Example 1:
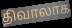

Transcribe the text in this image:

திவாலாக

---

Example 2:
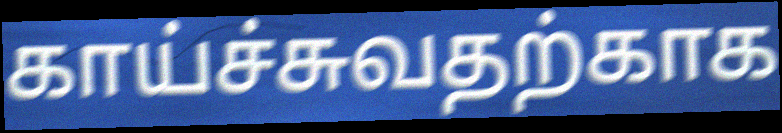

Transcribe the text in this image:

காய்ச்சுவதற்காக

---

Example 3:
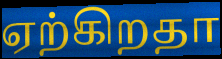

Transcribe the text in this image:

ஏற்கிறதா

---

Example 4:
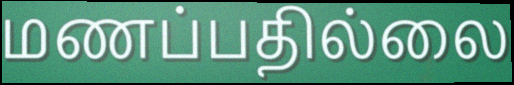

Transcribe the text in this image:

மணப்பதில்லை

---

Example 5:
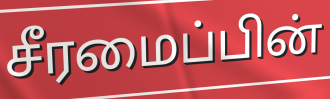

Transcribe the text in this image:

சீரமைப்பின்